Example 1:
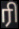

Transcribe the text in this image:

ரி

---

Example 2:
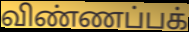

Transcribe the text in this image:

விண்ணப்பக்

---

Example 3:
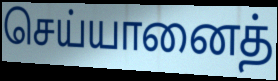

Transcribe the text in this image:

செய்யானைத்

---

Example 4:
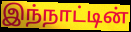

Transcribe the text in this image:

இந்நாட்டின்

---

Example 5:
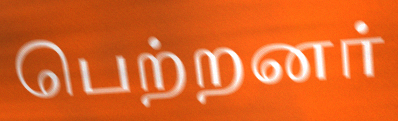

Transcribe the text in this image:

பெற்றனர்